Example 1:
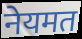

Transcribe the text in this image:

नेयमत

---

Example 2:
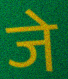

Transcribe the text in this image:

जे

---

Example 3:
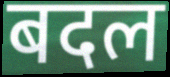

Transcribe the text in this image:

बदल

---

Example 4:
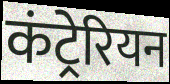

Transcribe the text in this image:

कंट्रेरियन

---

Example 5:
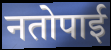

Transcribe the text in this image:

नतोपाई